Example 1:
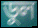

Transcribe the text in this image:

ডুল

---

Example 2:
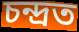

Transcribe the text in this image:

চন্দ্ৰত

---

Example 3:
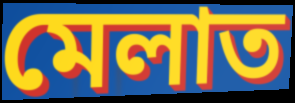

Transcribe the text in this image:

মেলাত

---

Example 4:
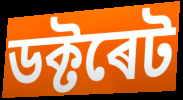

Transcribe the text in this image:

ডক্টৰেট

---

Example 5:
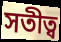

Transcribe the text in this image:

সতীত্ব